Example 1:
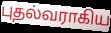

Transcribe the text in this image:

புதல்வராகிய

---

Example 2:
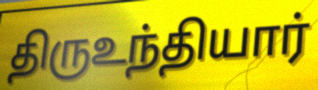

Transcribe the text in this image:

திருஉந்தியார்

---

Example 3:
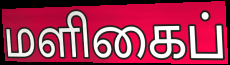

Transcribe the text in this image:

மளிகைப்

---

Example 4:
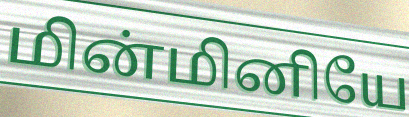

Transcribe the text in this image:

மின்மினியே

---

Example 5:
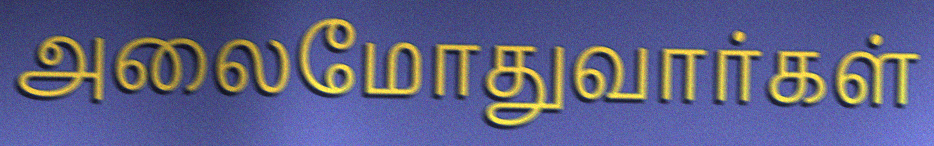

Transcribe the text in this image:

அலைமோதுவார்கள்